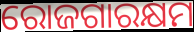
ରୋଜଗାରକ୍ଷମ